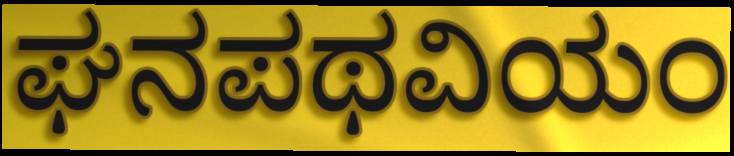
ಘನಪಥವಿಯಂ